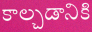
కాల్చడానికి